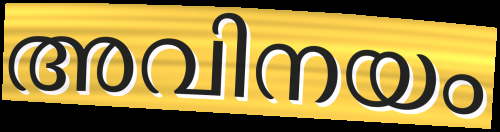
അവിനയം